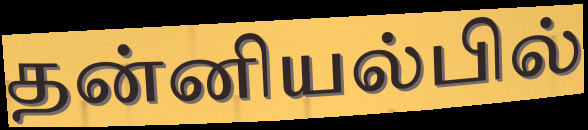
தன்னியல்பில்